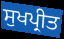
ਸੁਖਪ੍ਰੀਤ